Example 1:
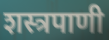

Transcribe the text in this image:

शस्त्रपाणी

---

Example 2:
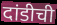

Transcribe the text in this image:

दांडीची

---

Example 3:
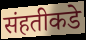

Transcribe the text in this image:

संहतीकडे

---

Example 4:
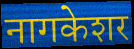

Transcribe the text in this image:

नागकेशर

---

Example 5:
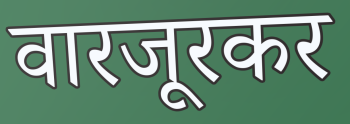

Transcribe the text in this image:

वारजूरकर